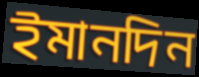
ইমানদিন